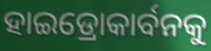
ହାଇଡ୍ରୋକାର୍ବନକୁ